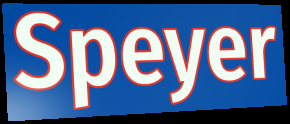
Speyer